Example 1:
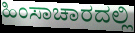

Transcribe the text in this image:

ಹಿಂಸಾಚಾರದಲ್ಲಿ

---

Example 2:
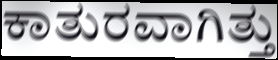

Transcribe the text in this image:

ಕಾತುರವಾಗಿತ್ತು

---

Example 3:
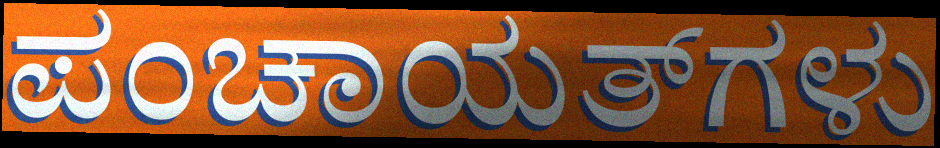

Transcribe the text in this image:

ಪಂಚಾಯತ್‌ಗಳು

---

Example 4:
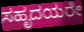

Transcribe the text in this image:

ಸಹೃದಯರೇ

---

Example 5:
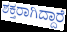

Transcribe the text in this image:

ಶಕ್ತರಾಗಿದ್ದಾರೆ